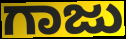
ಗಾಜು